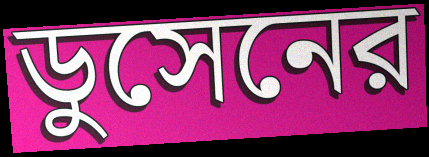
ডুসেনের